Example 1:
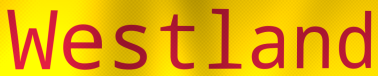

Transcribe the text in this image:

Westland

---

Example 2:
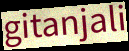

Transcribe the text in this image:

gitanjali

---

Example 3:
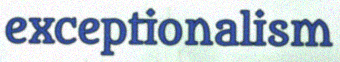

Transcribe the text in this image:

exceptionalism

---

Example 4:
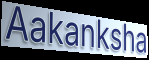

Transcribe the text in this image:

Aakanksha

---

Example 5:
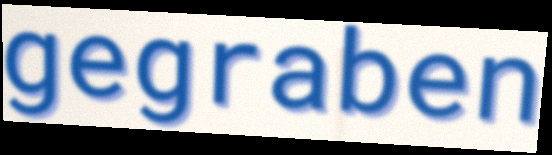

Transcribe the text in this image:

gegraben